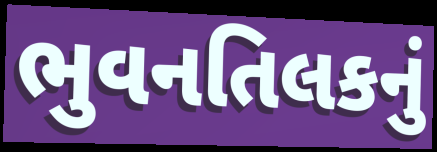
ભુવનતિલકનું